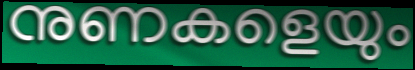
നുണകളെയും